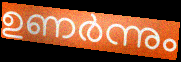
ഉണർന്നും